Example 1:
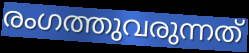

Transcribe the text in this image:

രംഗത്തുവരുന്നത്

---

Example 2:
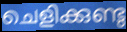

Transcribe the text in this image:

ചെളിക്കുണ്ടു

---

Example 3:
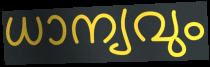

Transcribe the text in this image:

ധാന്യവും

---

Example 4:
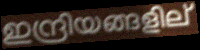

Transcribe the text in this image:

ഇന്ദ്രിയങ്ങളില്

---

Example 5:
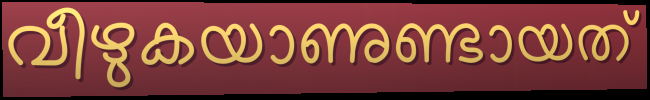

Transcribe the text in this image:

വീഴുകയാണുണ്ടായത്